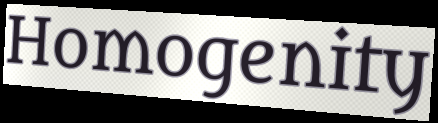
Homogenity